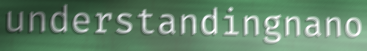
understandingnano